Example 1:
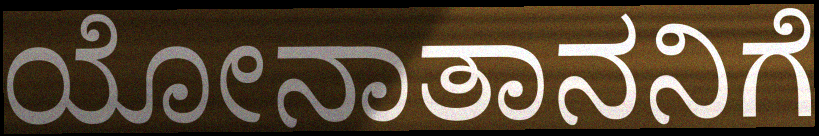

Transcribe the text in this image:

ಯೋನಾತಾನನಿಗೆ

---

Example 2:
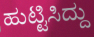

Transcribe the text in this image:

ಹುಟ್ಟಿಸಿದ್ದು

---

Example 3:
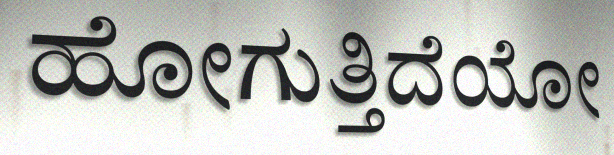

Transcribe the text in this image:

ಹೋಗುತ್ತಿದೆಯೋ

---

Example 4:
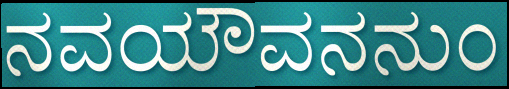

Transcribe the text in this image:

ನವಯೌವನನುಂ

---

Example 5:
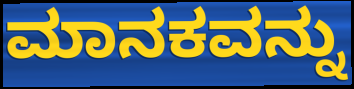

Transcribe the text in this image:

ಮಾನಕವನ್ನು